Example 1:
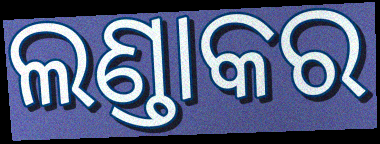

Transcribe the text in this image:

ଲଣ୍ଡାକର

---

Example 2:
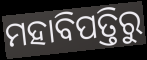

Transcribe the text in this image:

ମହାବିପତ୍ତିରୁ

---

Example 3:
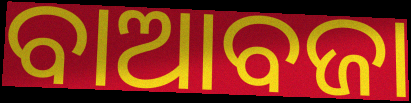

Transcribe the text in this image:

ବାଆବଜା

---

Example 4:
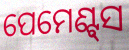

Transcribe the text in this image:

ପେମେଣ୍ଟ୍‌ସ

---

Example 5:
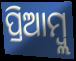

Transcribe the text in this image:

ପ୍ରିଆମ୍ବ୍ଲ